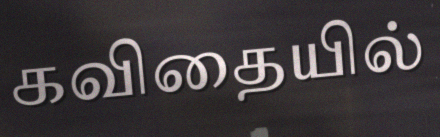
கவிதையில்